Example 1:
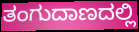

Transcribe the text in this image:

ತಂಗುದಾಣದಲ್ಲಿ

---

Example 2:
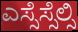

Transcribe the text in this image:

ಎಸ್ಸೆಸ್ಸೆಲ್ಸಿ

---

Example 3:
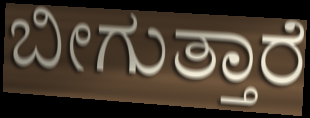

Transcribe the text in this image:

ಬೀಗುತ್ತಾರೆ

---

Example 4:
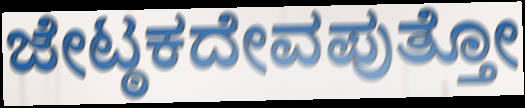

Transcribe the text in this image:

ಜೇಟ್ಠಕದೇವಪುತ್ತೋ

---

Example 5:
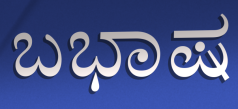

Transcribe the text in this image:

ಬಭಾಷ